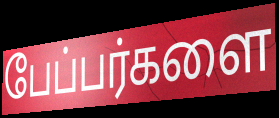
பேப்பர்களை